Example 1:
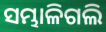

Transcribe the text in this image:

ସମ୍ଭାଳିଗଲି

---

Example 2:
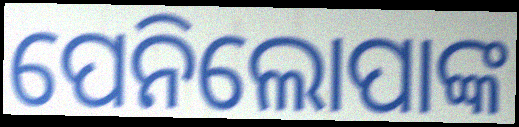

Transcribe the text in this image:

ପେନିଲୋପାଙ୍କ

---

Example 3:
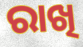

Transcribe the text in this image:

ରାଖି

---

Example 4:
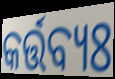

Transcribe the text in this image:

କର୍ତ୍ତବ୍ୟଃ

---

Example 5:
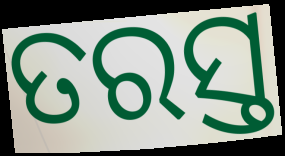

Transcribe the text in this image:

ତରସ୍ତ